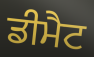
ਡੀਮੈਟ